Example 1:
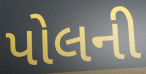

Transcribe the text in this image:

પોલની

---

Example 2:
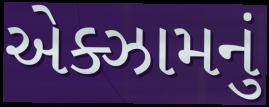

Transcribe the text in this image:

એક્ઝામનું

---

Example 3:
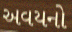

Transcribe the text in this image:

અવયનો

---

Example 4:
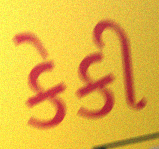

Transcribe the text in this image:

કેકી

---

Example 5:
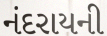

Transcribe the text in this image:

નંદરાયની